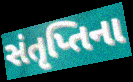
સંતૃપ્તિના